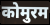
कोमुरम